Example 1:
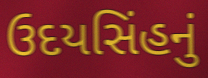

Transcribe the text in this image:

ઉદયસિંહનું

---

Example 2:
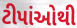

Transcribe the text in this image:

ટીપાંઓથી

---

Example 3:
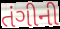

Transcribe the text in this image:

તંગીની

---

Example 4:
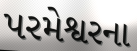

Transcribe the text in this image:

પરમેશ્વરના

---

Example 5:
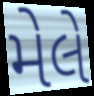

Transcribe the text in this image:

મેલે